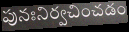
పునఃనిర్వచించడం